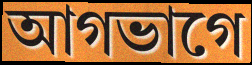
আগভাগে